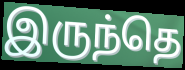
இருந்தெ